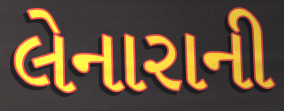
લેનારાની